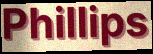
Phillips